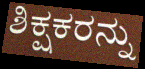
ಶಿಕ್ಷಕರನ್ನು